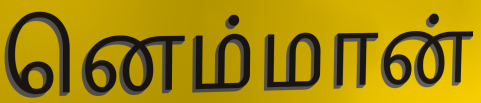
னெம்மான்